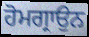
ਹੋਮਗ੍ਰਾਉਨ